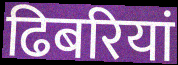
ढिबरियां